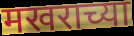
मखराच्या